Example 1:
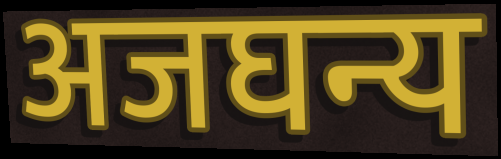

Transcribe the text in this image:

अजघन्य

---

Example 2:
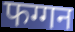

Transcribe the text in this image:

फग्गन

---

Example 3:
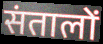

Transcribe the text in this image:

संतालों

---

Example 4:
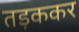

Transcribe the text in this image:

तड़ककर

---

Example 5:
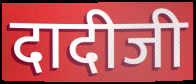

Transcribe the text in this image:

दादीजी